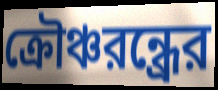
ক্রৌঞ্চরন্ধ্রের